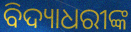
ବିଦ୍ୟାଧରୀଙ୍କ